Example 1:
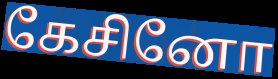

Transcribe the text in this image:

கேசினோ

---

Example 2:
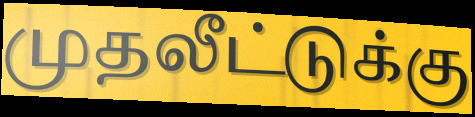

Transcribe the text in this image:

முதலீட்டுக்கு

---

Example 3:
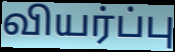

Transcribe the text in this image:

வியர்ப்பு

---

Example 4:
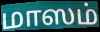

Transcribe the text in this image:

மாஸம்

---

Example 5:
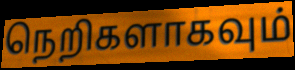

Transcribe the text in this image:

நெறிகளாகவும்